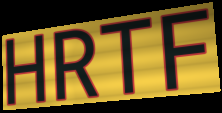
HRTF